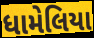
ધામેલિયા